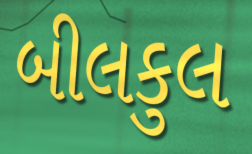
બીલકુલ